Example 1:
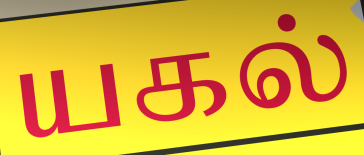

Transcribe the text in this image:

யகல்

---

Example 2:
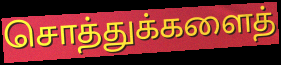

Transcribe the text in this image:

சொத்துக்களைத்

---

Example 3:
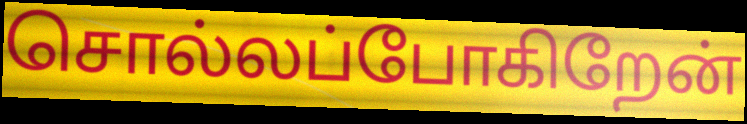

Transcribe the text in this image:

சொல்லப்போகிறேன்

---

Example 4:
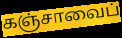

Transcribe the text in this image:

கஞ்சாவைப்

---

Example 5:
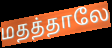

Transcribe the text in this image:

மதத்தாலே